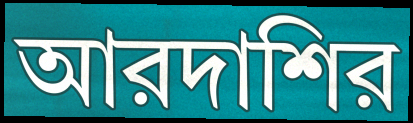
আরদাশির